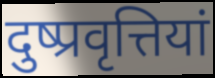
दुष्प्रवृत्तियां